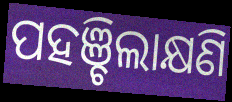
ପହଞ୍ଚିଲାକ୍ଷଣି